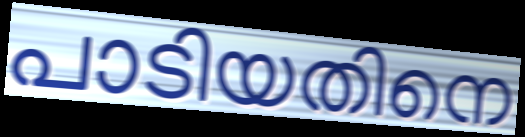
പാടിയതിനെ